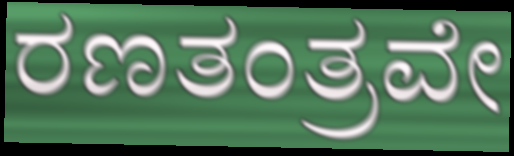
ರಣತಂತ್ರವೇ